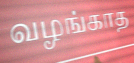
வழங்காத